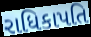
રાધિકાપતિ